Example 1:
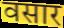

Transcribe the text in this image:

वसार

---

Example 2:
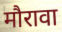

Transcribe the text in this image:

मौरावा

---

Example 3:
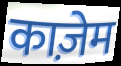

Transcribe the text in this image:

काज़ेम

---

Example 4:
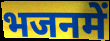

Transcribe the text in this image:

भजनमें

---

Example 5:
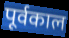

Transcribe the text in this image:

पूर्वकाल